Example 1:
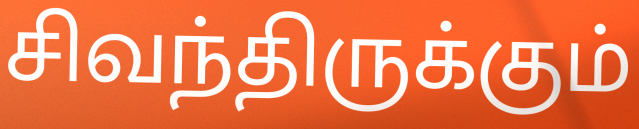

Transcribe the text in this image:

சிவந்திருக்கும்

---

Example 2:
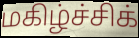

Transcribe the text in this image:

மகிழ்ச்சிக்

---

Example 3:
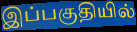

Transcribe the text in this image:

இப்பகுதியில்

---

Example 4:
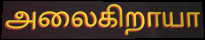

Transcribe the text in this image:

அலைகிறாயா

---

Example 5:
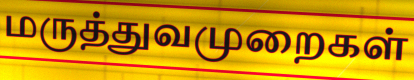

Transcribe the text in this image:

மருத்துவமுறைகள்